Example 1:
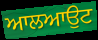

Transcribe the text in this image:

ਆਲਆਉਟ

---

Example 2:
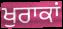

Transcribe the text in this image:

ਖੁਰਾਕਾਂ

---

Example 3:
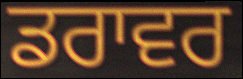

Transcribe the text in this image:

ਡਰਾਵਰ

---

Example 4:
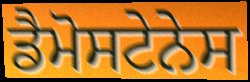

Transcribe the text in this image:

ਡੈਮੋਸਟੇਨੇਸ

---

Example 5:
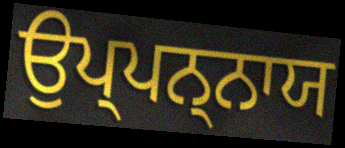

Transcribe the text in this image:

ਉਪ੍ਪਨ੍ਨਾਯ